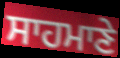
ਸਾਹਮਾਣੇ